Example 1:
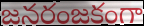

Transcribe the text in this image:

జనరంజకంగా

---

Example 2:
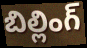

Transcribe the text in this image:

బిల్లింగ్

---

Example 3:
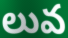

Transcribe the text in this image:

లువ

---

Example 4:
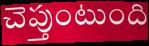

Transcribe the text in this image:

చెప్తుంటుంది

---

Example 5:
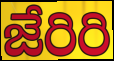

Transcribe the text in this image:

జేరిరి